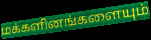
மக்களினங்களையும்